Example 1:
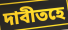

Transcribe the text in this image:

দাবীতহে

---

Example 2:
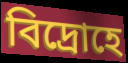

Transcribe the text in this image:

বিদ্ৰোহে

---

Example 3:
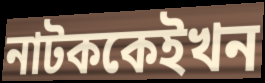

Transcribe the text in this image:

নাটককেইখন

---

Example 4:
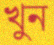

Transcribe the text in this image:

খুন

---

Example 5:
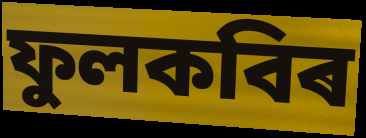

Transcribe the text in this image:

ফুলকবিৰ